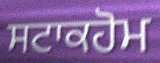
ਸਟਾਕਹੋਮ